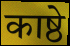
काष्ठे